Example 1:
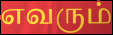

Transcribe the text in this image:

எவரும்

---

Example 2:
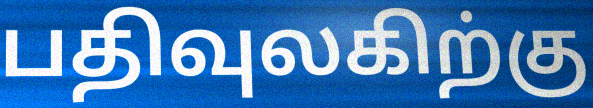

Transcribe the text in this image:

பதிவுலகிற்கு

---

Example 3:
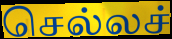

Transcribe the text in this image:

செல்லச்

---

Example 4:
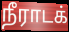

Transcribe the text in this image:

நீராடக்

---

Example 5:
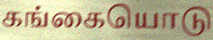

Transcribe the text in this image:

கங்கையொடு